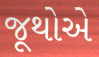
જૂથોએ